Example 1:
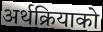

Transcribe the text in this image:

अर्थक्रियाको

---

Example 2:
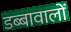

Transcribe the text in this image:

डब्बावालों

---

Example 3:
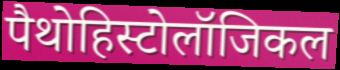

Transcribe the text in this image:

पैथोहिस्टोलॉजिकल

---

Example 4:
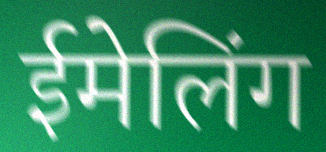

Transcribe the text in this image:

ईमेलिंग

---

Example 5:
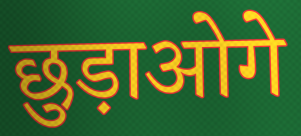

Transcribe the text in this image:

छुड़ाओगे